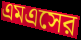
এমএসের